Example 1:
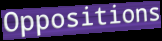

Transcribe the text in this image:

Oppositions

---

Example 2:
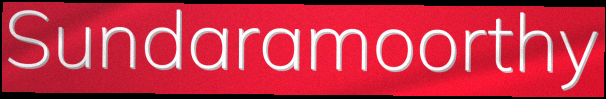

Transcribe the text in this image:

Sundaramoorthy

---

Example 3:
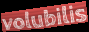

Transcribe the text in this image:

volubilis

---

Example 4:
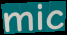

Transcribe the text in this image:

mic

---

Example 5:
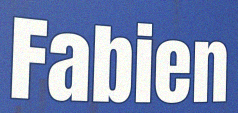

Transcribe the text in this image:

Fabien